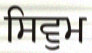
ਸਿਵੁਮ